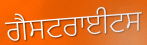
ਗੈਸਟਰਾਈਟਸ